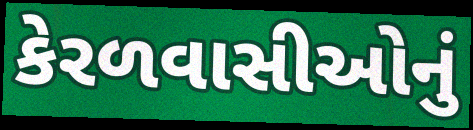
કેરળવાસીઓનું